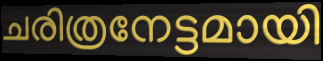
ചരിത്രനേട്ടമായി